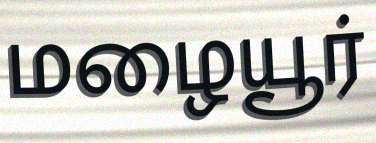
மழையூர்